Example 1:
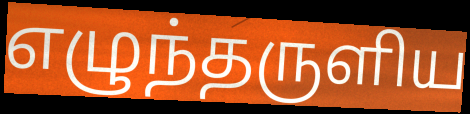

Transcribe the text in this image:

எழுந்தருளிய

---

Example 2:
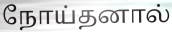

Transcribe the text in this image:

நோய்தனால்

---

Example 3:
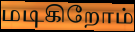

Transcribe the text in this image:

மடிகிறோம்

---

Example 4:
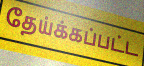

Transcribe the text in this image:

தேய்க்கப்பட்ட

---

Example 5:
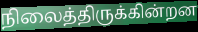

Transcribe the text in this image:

நிலைத்திருக்கின்றன